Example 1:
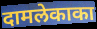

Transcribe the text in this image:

दामलेकाका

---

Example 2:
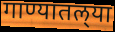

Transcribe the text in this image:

गाण्यातल्या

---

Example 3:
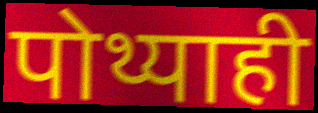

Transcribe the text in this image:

पोथ्याही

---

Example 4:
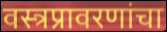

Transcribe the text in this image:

वस्त्रप्रावरणांचा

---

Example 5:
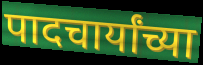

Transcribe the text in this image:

पादचार्यांच्या